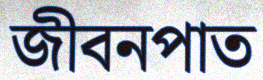
জীবনপাত